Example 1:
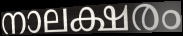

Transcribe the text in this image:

നാലക്ഷരം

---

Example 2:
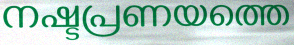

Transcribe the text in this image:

നഷ്ടപ്രണയത്തെ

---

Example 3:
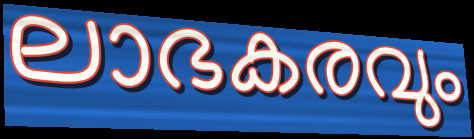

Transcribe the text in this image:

ലാഭകരവും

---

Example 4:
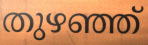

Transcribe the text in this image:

തുഴഞ്ഞ്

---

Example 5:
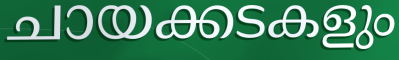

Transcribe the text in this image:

ചായക്കടകളും